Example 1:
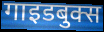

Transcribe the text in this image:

गाइडबुक्स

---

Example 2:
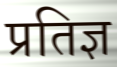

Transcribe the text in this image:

प्रतिज्ञ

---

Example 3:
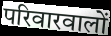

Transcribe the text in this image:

परिवारवालों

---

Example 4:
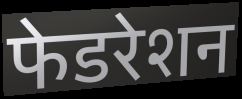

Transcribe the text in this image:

फेडरेशन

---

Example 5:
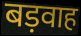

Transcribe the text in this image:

बड़वाह